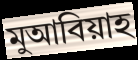
মুআবিয়াহ